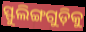
ସ୍ଫୁଲିଙ୍ଗଗୁଡ଼ିକୁ